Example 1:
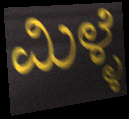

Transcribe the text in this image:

ಮಿಳ್ಳೆ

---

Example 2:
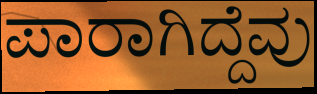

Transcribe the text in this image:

ಪಾರಾಗಿದ್ದೆವು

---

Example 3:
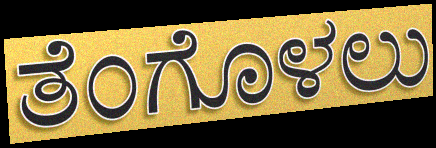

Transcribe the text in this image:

ತೆಂಗೊಳಲು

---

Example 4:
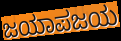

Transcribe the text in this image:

ಜಯಾಪಜಯ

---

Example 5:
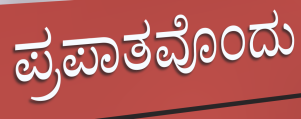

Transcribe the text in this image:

ಪ್ರಪಾತವೊಂದು